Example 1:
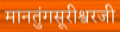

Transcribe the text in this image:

मानतुंगसूरीश्वरजी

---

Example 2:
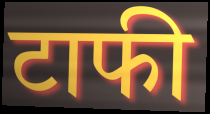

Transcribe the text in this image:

टाफी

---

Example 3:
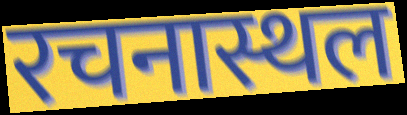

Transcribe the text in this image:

रचनास्थल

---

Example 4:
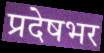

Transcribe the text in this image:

प्रदेषभर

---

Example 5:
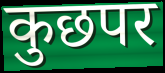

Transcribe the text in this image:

कुछपर